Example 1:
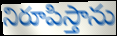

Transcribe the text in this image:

నిరూపిస్తాను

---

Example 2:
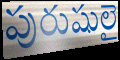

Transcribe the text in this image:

పురుషులై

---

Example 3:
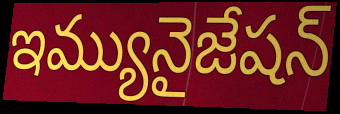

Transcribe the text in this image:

ఇమ్యునైజేషన్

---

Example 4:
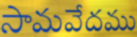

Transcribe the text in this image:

సామవేదము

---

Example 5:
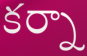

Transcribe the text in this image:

కర్నా